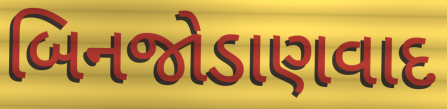
બિનજોડાણવાદ